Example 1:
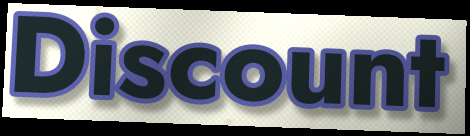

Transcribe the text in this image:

Discount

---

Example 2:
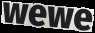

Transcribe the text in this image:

wewe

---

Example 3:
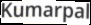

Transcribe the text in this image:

Kumarpal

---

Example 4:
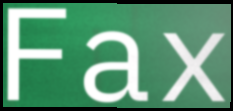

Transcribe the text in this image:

Fax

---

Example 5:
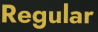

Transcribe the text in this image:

Regular